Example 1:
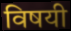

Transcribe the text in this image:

विषयी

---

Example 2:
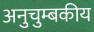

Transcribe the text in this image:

अनुचुम्बकीय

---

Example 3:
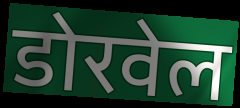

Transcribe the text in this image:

डोरवेल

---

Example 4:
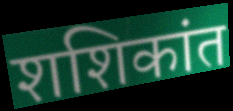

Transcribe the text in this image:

शशिकांत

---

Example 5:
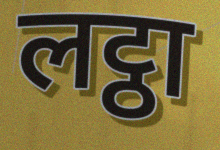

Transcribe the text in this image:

लट्ठा